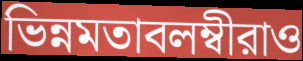
ভিন্নমতাবলম্বীরাও